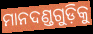
ମାନଦଣ୍ଡଗୁଡ଼ିକୁ